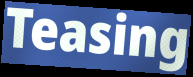
Teasing